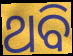
ଥବି